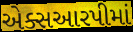
એક્સઆરપીમાં